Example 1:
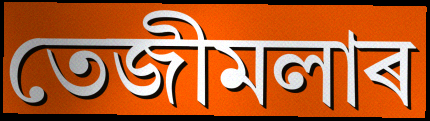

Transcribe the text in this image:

তেজীমলাৰ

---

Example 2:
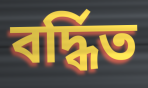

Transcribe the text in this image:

বৰ্দ্ধিত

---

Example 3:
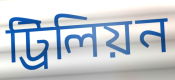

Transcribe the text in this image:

ট্ৰিলিয়ন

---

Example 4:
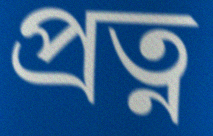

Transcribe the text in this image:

প্ৰত্ন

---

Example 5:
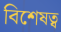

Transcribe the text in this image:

বিশেষত্ব